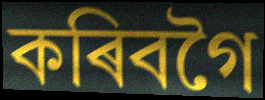
কৰিবগৈ